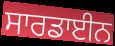
ਸਾਰਡਾਈਨ